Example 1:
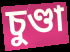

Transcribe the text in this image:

চুণ্ডা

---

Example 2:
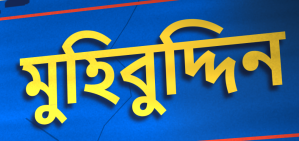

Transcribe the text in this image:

মুহিবুদ্দিন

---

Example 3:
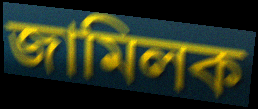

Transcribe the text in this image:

জামিলক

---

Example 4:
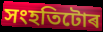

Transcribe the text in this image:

সংহতিটোৰ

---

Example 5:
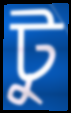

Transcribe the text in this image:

টু